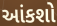
આંકશો